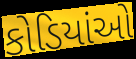
કોડિયાંઓ